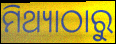
ମିଥ୍ୟାଠାରୁ